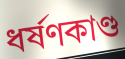
ধর্ষণকাণ্ড